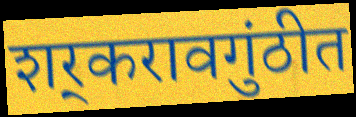
शर्करावगुंठीत